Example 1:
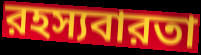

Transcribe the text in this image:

রহস্যবারতা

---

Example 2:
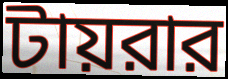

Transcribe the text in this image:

টায়রার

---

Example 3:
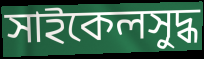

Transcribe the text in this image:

সাইকেলসুদ্ধ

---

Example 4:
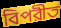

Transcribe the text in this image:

বিপরীত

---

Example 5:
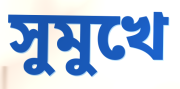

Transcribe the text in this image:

সুমুখে